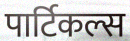
पार्टिकल्‍स